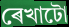
ৰেখাটো